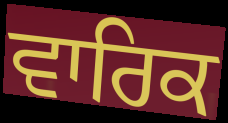
ਵਾਰਿਕ